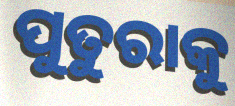
ପୁତୁରାକୁ